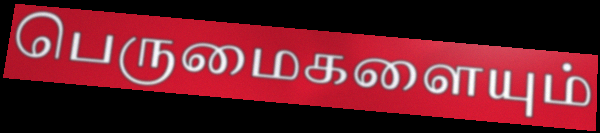
பெருமைகளையும்